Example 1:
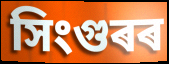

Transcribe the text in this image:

সিংগুৰৰ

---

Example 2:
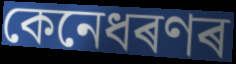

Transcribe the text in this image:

কেনেধৰণৰ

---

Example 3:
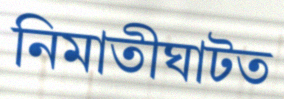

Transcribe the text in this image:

নিমাতীঘাটত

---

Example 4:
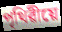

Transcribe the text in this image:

পৃথিৱীয়ে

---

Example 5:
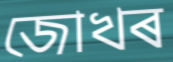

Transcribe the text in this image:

জোখৰ